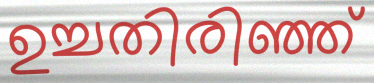
ഉച്ചതിരിഞ്ഞ്